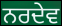
ਨਰਦੇਵ